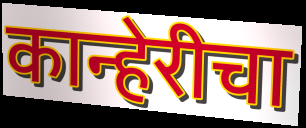
कान्हेरीचा